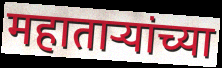
महाताऱ्यांच्या